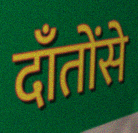
दाँतोंसे